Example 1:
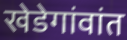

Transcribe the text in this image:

खेडेगांवांत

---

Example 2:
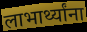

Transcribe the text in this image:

लाभार्थ्यांना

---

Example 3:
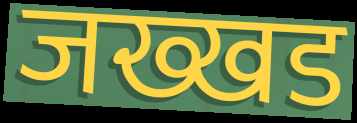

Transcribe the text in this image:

जख्खड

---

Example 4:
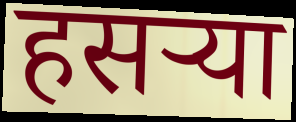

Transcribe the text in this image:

हसऱ्या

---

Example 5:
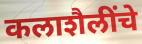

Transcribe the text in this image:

कलाशैलींचे